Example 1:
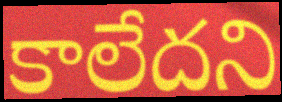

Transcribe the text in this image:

కాలేదని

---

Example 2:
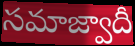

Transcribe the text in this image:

సమాజ్వాదీ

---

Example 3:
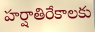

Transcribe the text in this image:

హర్షాతిరేకాలకు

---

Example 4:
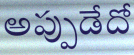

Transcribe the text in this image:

అప్పుడేదో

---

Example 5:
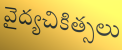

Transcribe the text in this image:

వైద్యచికిత్సలు